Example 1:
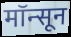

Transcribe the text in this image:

मॉन्सून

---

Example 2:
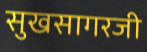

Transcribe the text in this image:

सुखसागरजी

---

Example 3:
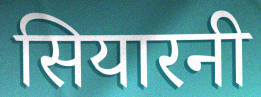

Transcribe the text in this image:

सियारनी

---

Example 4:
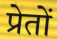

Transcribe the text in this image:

प्रेतों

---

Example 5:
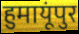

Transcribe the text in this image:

हुमायूंपुर